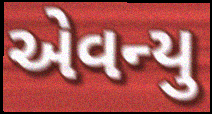
એવન્યુ